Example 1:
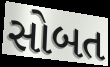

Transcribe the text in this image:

સોબત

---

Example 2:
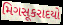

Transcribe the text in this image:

મિગસૂકરાદયો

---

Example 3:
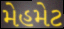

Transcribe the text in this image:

મેહમેટ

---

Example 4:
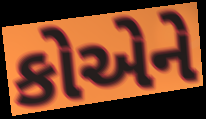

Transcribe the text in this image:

કોએને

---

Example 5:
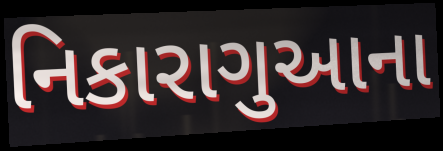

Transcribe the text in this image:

નિકારાગુઆના